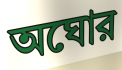
অঘোর